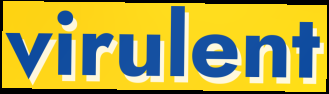
virulent